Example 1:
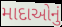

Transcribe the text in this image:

માદાઓનું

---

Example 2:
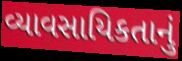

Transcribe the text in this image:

વ્યાવસાયિકતાનું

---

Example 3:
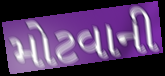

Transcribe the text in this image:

મોટવાની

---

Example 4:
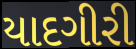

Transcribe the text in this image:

યાદગીરી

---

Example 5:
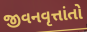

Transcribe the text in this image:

જીવનવૃત્તાંતો